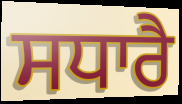
ਸਧਾਰੈ